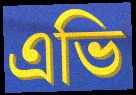
এভি